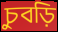
চুবড়ি